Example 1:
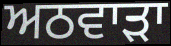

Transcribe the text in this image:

ਅਠਵਾੜਾ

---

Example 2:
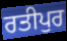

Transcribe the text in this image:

ਰਤੀਪੁਰ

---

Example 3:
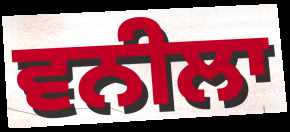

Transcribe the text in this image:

ਵਨੀਲਾ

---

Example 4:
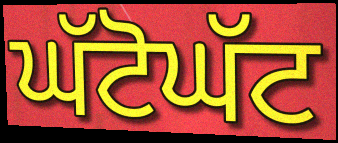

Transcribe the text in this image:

ਘੱਟੋਘੱਟ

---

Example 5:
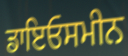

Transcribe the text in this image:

ਡਾਇਓਸਮੀਨ